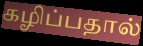
கழிப்பதால்